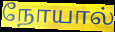
நோயால்